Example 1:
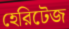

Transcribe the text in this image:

হেরিটেজ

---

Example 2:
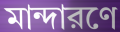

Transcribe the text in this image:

মান্দারণে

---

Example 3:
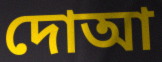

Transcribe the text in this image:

দোআ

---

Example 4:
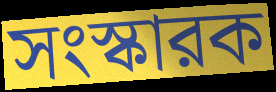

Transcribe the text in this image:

সংস্কারক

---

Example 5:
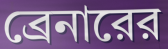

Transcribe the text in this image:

ব্রেনারের